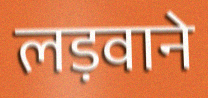
लड़वाने